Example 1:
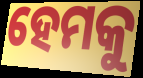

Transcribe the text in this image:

ହେମକୁ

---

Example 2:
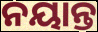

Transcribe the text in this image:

ନୟାନ୍ତ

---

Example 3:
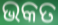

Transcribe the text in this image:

ଭକତ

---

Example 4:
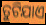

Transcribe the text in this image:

ତୁଟିଯାଏ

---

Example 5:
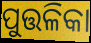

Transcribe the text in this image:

ପୁତ୍ତଳିକା